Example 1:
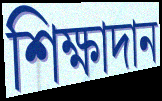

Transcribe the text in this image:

শিক্ষাদান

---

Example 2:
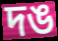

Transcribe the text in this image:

দঙ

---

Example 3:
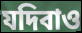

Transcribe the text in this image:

যদিবাও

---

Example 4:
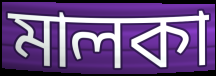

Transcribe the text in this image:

মালকা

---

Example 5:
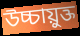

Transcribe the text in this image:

উচ্চায়ুক্ত